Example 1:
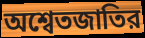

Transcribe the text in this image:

অশ্বেতজাতির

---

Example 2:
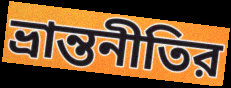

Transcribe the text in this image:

ভ্রান্তনীতির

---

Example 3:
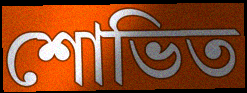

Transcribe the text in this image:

শোভিত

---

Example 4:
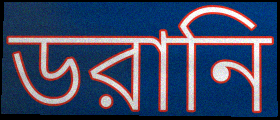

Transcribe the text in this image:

ডরানি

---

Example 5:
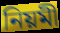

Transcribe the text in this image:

নিয়মী